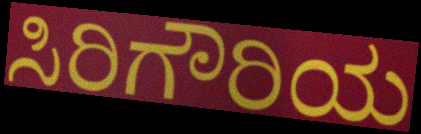
ಸಿರಿಗೌರಿಯ